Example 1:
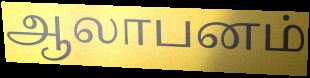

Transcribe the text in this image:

ஆலாபனம்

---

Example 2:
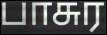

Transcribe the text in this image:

பாசுர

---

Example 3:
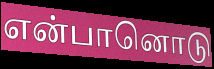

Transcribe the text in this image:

என்பானொடு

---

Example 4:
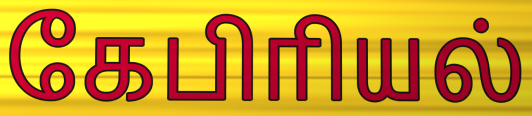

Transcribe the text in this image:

கேபிரியல்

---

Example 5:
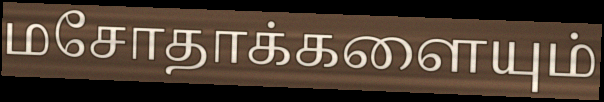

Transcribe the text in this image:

மசோதாக்களையும்